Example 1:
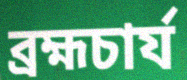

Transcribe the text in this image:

ব্রহ্মচার্য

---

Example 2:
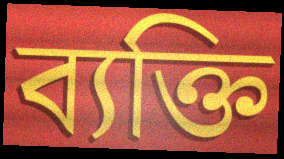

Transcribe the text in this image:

ব্যক্তি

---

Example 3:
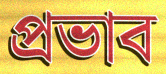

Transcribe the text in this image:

প্রভাব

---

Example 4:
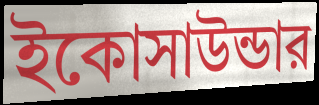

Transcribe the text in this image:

ইকোসাউন্ডার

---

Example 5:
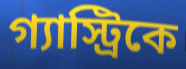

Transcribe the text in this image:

গ্যাস্ট্রিকে